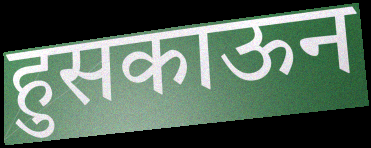
हुसकाऊन